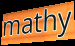
mathy